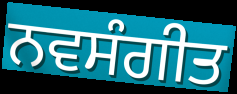
ਨਵਸੰਗੀਤ